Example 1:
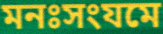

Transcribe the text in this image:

মনঃসংযমে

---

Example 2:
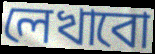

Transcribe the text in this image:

লেখাবো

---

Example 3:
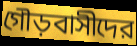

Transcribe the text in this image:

গৌড়বাসীদের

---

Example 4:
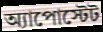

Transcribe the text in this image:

অ্যাপোস্টেট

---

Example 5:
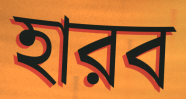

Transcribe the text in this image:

হারব